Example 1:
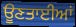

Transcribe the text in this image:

ਊਣਤਾਈਆਂ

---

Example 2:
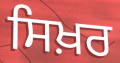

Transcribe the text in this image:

ਸਿਖ਼ਰ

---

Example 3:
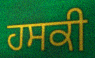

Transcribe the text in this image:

ਹਸਕੀ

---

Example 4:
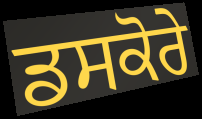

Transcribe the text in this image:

ਡਸਕੋਰੇ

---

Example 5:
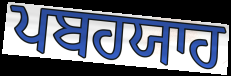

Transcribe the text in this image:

ਪਬਹਯਾਹ